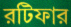
রটিফার